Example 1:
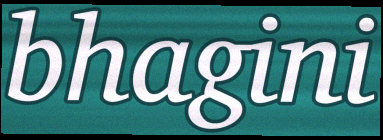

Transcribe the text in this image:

bhagini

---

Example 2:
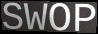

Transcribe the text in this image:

SWOP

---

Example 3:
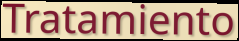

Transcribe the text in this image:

Tratamiento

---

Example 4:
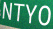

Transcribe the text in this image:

NTYO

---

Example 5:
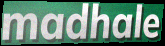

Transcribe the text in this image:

madhale